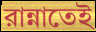
রান্নাতেই